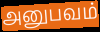
அனுபவம்